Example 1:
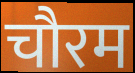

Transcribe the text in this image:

चौरम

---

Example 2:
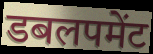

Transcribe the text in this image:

डबलपमेंट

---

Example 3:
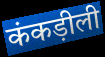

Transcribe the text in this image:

कंकड़ीली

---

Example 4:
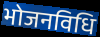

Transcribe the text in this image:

भोजनविधि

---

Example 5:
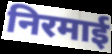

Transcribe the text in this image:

निरमाई